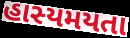
હાસ્યમયતા